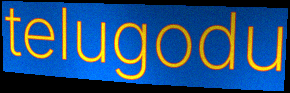
telugodu